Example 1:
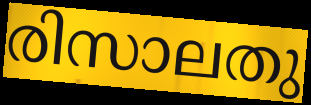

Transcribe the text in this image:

രിസാലതു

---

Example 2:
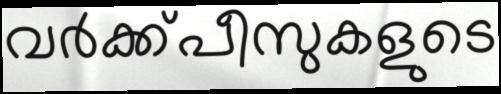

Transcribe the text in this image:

വർക്ക്പീസുകളുടെ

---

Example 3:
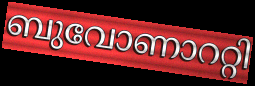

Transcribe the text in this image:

ബുവോണാററ്റി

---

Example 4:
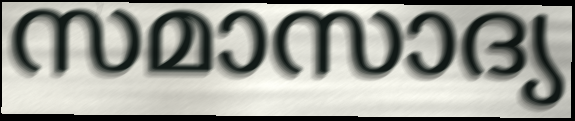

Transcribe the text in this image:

സമാസാദ്യ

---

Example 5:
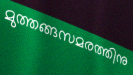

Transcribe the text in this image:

മുത്തങ്ങസമരത്തിനു